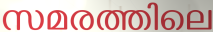
സമരത്തിലെ